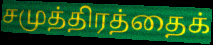
சமுத்திரத்தைக்